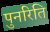
पुनरिति